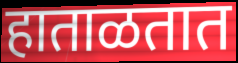
हाताळतात